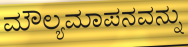
ಮೌಲ್ಯಮಾಪನವನ್ನು